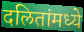
दलितांमध्ये